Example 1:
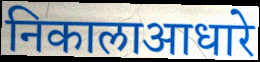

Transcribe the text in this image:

निकालाआधारे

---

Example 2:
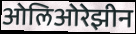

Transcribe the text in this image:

ओलिओरेझीन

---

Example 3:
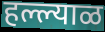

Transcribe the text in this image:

हल्ल्याळ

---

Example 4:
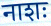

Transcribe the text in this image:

नाशः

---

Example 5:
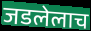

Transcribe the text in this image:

जडलेलाच